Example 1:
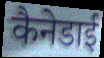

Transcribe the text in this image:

कैनेडाई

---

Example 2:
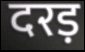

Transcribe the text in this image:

दरड़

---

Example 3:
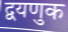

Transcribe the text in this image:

द्वयणुक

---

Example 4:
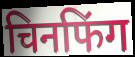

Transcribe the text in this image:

चिनफिंग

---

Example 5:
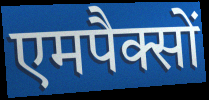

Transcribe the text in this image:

एमपैक्सों